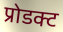
प्रोडक्ट